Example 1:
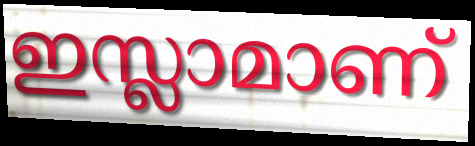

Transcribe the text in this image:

ഇസ്ലാമാണ്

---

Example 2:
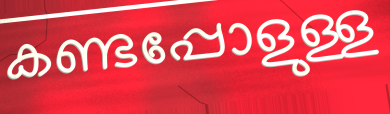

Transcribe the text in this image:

കണ്ടപ്പോളുള്ള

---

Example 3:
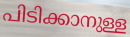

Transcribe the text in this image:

പിടിക്കാനുള്ള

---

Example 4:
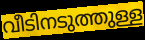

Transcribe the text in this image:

വീടിനടുത്തുള്ള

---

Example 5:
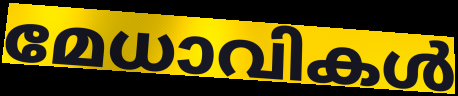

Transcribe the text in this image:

മേധാവികൾ